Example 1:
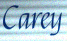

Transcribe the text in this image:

Carey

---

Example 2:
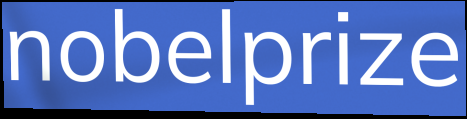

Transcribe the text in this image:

nobelprize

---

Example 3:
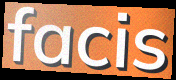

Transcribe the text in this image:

facis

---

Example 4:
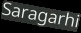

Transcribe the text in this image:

Saragarhi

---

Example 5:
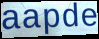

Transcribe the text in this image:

aapde